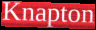
Knapton